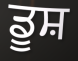
ਡੂਸ਼